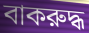
বাকরুদ্ধ